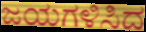
ಜಯಗಳಿಸಿದ